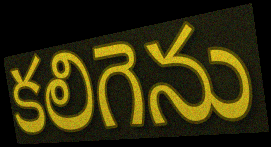
కలిగెను